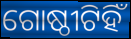
ଗୋଷ୍ଠୀଟିହିଁ